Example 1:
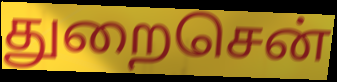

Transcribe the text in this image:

துறைசென்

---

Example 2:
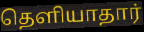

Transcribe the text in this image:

தெளியாதார்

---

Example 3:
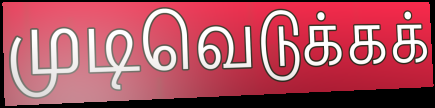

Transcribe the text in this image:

முடிவெடுக்கக்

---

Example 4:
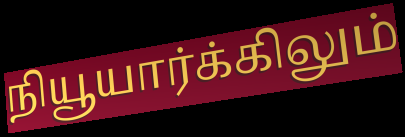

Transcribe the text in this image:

நியூயார்க்கிலும்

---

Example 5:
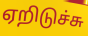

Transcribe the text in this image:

ஏறிடுச்சு